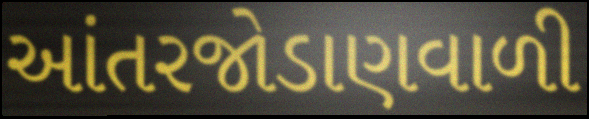
આંતરજોડાણવાળી